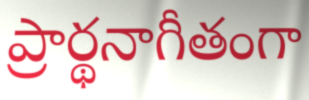
ప్రార్థనాగీతంగా